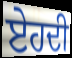
ਏਹਦੀ